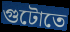
গুটোতে